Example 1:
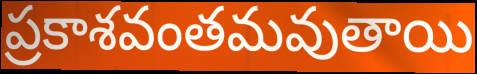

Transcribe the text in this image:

ప్రకాశవంతమవుతాయి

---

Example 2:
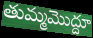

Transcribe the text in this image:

తుమ్మమొద్దూ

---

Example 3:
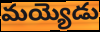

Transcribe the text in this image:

మయ్యెడు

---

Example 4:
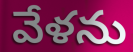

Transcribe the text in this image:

వేళను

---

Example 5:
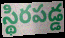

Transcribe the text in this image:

స్థిరపడ్డ